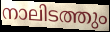
നാലിടത്തും